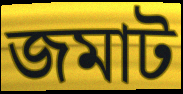
জমাট